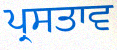
ਪ੍ਰਸਤਾਵ